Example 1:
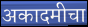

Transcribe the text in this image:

अकादमीचा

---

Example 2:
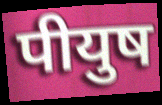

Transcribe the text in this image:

पीयुष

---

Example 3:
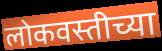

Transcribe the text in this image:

लोकवस्तीच्या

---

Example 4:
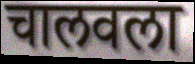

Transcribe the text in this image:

चालवला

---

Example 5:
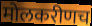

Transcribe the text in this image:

मोलकरीणच